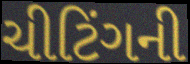
ચીટિંગની